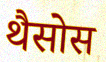
थैसोस